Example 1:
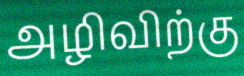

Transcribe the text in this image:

அழிவிற்கு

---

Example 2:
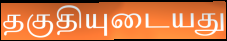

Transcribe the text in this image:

தகுதியுடையது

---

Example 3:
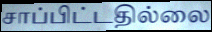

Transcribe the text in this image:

சாப்பிட்டதில்லை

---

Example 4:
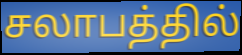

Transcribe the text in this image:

சலாபத்தில்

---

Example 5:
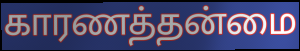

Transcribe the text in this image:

காரணத்தன்மை